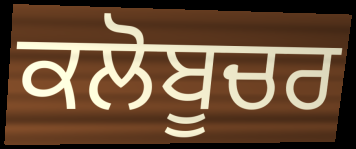
ਕਲੋਬੂਚਰ